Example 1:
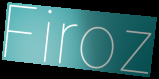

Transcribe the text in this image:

Firoz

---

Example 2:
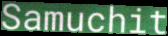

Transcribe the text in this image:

Samuchit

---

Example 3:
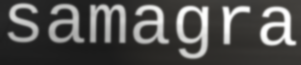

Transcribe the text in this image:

samagra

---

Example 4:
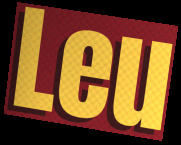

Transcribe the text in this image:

Leu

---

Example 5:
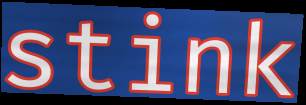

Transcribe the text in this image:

stink